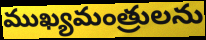
ముఖ్యమంత్రులను